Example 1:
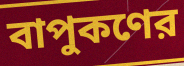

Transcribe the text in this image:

বাপুকণের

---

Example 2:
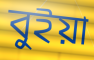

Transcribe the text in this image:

বুইয়া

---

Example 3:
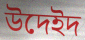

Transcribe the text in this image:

উদেইদ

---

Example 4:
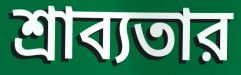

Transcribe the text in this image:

শ্রাব্যতার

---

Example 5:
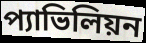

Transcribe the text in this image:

প্যাভিলিয়ন